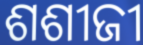
ଶଶୀଜୀ